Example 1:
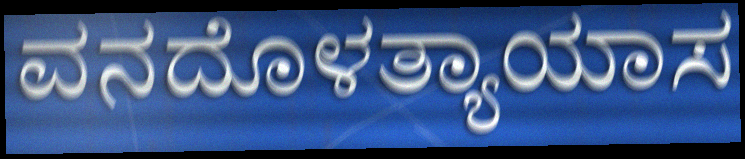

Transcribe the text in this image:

ವನದೊಳತ್ಯಾಯಾಸ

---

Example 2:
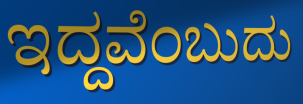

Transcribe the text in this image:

ಇದ್ದವೆಂಬುದು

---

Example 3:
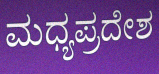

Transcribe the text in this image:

ಮಧ್ಯಪ್ರದೇಶ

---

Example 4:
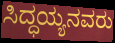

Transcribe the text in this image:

ಸಿದ್ಧಯ್ಯನವರು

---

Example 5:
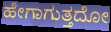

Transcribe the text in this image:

ಹೇಗಾಗುತ್ತದೋ